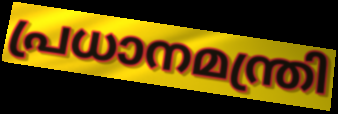
പ്രധാനമന്ത്രി